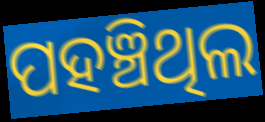
ପହଞ୍ଚିଥିଲ